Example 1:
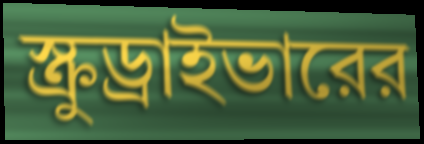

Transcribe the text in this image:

স্ক্রুড্রাইভারের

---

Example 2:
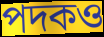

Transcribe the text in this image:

পদকও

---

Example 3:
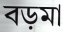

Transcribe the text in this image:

বড়মা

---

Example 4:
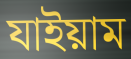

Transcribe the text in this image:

যাইয়াম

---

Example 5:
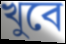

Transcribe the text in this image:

খুবে